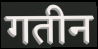
गतीन